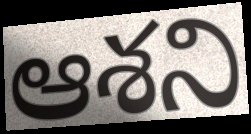
ఆశని